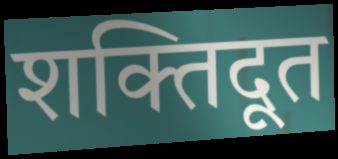
शक्तिदूत